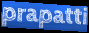
prapatti